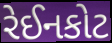
રેઈનકોટ